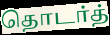
தொடர்த்